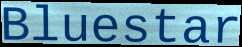
Bluestar